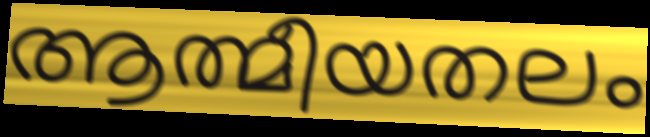
ആത്മീയതലം